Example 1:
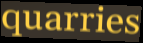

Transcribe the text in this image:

quarries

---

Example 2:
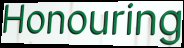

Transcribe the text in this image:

Honouring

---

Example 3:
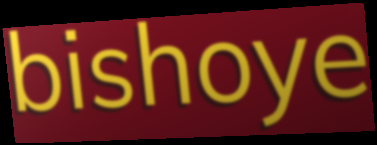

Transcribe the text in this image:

bishoye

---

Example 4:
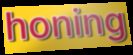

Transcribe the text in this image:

honing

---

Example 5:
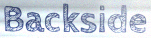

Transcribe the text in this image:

Backside